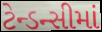
ટેન્ડન્સીમાં